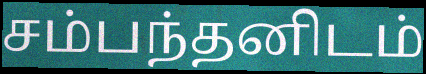
சம்பந்தனிடம்